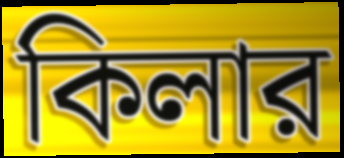
কিলার